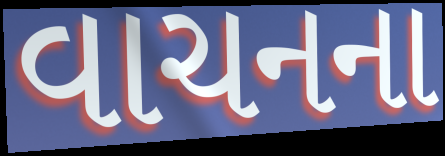
વાચનના